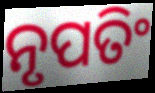
ନୃପତିଂ